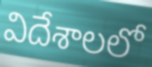
విదేశాలలో